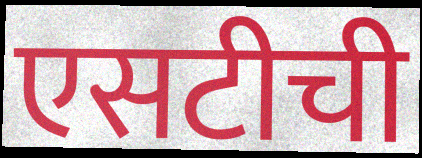
एसटीची